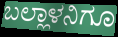
ಬಲ್ಲಾಳನಿಗೂ